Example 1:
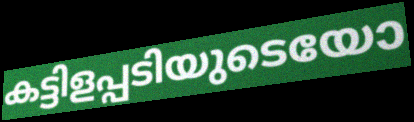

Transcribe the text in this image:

കട്ടിളപ്പടിയുടെയോ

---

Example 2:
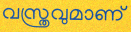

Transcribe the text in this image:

വസ്ത്രവുമാണ്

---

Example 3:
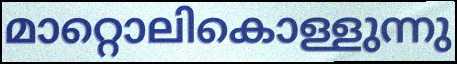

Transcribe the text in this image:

മാറ്റൊലികൊള്ളുന്നു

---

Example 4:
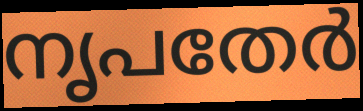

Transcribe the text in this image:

നൃപതേർ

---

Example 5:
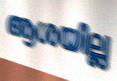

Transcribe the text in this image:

ആശയില്ല